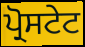
ਪ੍ਰੋਸਟੇਟ